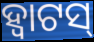
ହ୍ୱାଟସ୍